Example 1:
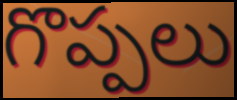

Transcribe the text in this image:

గొప్పలు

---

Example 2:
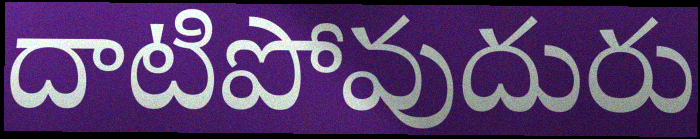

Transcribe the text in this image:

దాటిపోవుదురు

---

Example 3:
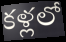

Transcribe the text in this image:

కళ్లలో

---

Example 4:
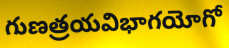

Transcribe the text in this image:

గుణత్రయవిభాగయోగో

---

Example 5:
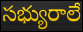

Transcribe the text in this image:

సభ్యురాలే